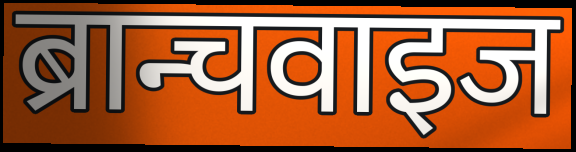
ब्रान्चवाइज